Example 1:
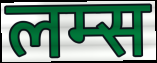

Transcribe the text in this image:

लम्स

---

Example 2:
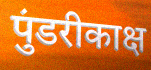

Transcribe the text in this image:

पुंडरीकाक्ष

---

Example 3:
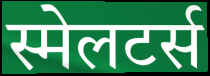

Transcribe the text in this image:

स्मेलटर्स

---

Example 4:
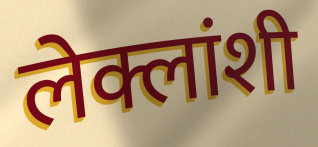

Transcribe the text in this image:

लेक्लांशी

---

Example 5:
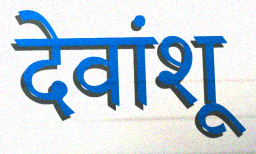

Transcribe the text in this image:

देवांशू